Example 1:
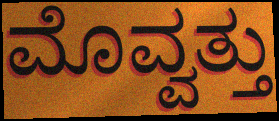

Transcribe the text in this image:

ಮೊವ್ವತ್ತು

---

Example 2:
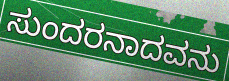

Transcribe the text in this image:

ಸುಂದರನಾದವನು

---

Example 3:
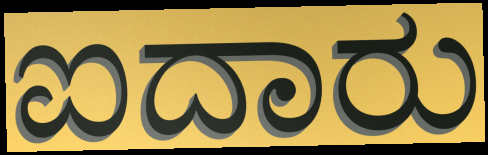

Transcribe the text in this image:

ಐದಾರು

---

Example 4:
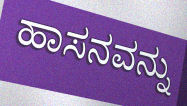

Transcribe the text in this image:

ಹಾಸನವನ್ನು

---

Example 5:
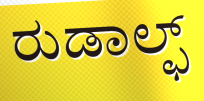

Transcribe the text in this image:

ರುಡಾಲ್ಫ್